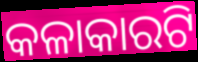
କଳାକାରଟି